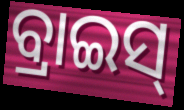
ବ୍ରାଇସ୍